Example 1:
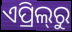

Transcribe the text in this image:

ଏପ୍ରିଲ୍‍ରୁ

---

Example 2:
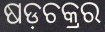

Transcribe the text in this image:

ଷଡ଼ଚକ୍ରର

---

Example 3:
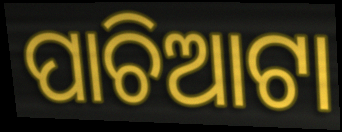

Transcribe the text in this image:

ପାଚିଆଟା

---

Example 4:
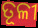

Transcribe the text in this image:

ତୂଳୀ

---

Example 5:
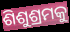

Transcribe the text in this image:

ଶିଶୁଶ୍ରମକୁ